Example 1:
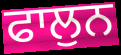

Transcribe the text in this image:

ਫਾਲੁਨ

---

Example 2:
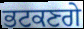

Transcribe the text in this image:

ਭਟਕਣਗੇ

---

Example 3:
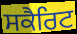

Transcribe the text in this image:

ਸਕੈਰਿਟ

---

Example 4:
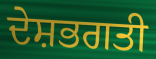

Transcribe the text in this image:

ਦੇਸ਼ਭਗਤੀ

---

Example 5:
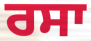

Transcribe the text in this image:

ਰਸਾ